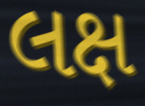
લક્ષ